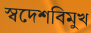
স্বদেশবিমুখ